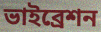
ভাইব্রেশন